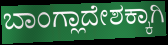
ಬಾಂಗ್ಲಾದೇಶಕ್ಕಾಗಿ